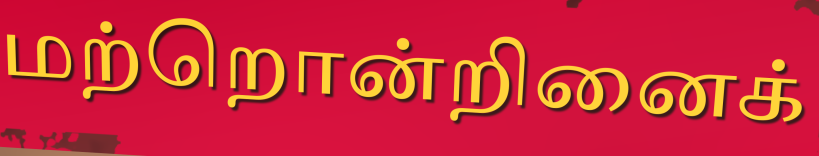
மற்றொன்றினைக்